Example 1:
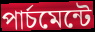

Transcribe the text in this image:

পার্চমেন্টে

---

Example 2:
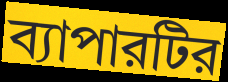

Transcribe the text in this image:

ব্যাপারটির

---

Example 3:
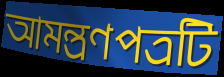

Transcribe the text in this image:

আমন্ত্রণপত্রটি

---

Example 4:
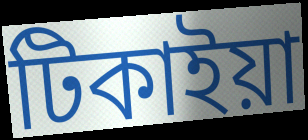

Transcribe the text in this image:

টিকাইয়া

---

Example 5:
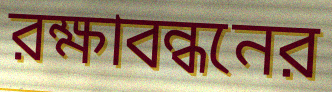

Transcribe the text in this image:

রক্ষাবন্ধনের